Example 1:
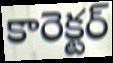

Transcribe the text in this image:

కారెక్టర్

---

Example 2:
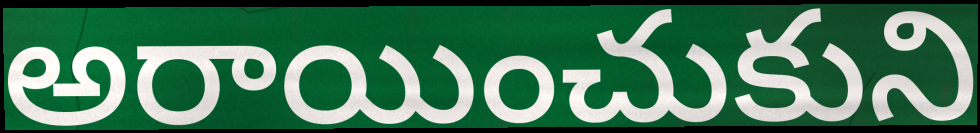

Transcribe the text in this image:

అరాయించుకుని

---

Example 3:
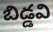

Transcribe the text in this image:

బిడ్డవి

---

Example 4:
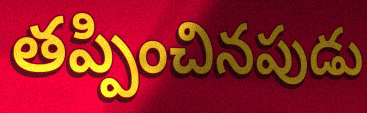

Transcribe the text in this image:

తప్పించినపుడు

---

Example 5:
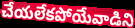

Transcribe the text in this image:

చేయలేకపోయేవాడిని